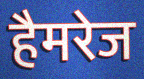
हैमरेज